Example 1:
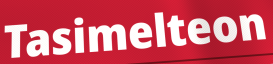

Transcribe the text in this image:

Tasimelteon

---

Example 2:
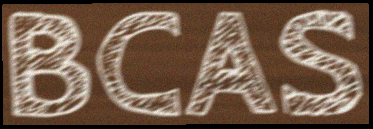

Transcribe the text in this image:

BCAS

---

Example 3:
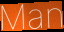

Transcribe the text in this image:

Man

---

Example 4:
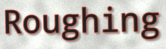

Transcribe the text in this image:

Roughing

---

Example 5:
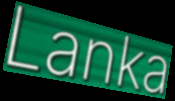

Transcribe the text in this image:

Lanka